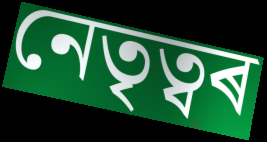
নেতৃত্বৰ